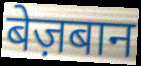
बेज़बान